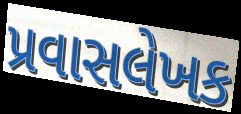
પ્રવાસલેખક